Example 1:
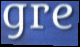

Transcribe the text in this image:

gre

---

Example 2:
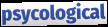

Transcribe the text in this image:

psycological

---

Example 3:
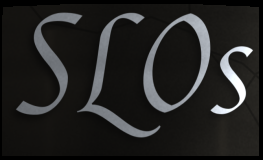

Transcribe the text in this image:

SLOs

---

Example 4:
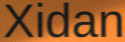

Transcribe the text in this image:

Xidan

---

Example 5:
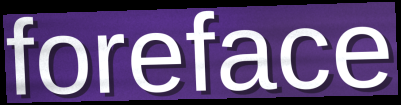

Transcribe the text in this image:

foreface